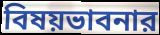
বিষয়ভাবনার